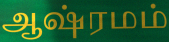
ஆஷ்ரமம்